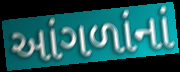
આંગળાંનાં